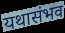
यथासंभव